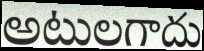
అటులగాదు